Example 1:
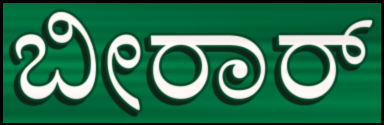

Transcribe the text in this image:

ಬೀರಾರ್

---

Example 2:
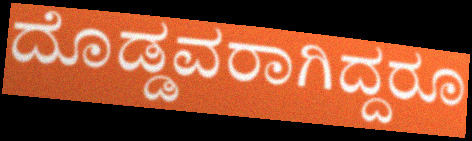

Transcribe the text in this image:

ದೊಡ್ಡವರಾಗಿದ್ದರೂ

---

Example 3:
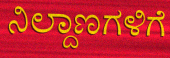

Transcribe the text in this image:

ನಿಲ್ದಾಣಗಳಿಗೆ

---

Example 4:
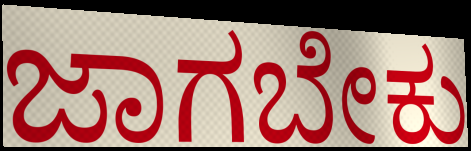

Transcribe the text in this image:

ಜಾಗಬೇಕು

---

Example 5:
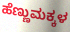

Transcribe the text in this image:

ಹೆಣ್ಣುಮಕ್ಕಳ